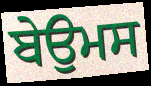
ਬੇਉਮਸ